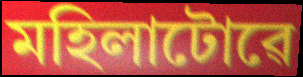
মহিলাটোৱে